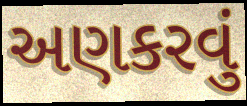
અણકરવું